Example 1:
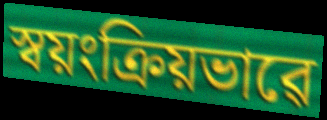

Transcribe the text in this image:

স্বয়ংক্ৰিয়ভাৱে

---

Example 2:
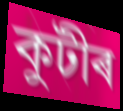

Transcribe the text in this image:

কুটীৰ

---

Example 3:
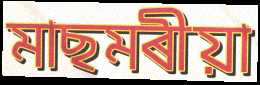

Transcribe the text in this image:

মাছমৰীয়া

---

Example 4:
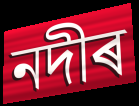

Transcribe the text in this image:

নদীৰ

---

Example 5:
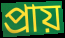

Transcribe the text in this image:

প্ৰায়